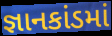
જ્ઞાનકાંડમાં